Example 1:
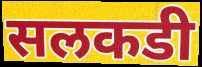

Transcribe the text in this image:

सलकडी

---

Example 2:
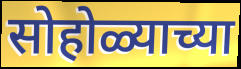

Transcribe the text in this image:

सोहोळ्याच्या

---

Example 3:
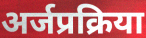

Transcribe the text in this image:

अर्जप्रक्रिया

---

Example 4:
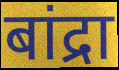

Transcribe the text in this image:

बांद्रा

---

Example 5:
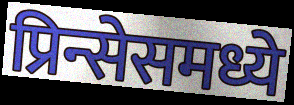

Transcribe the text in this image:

प्रिन्सेसमध्ये